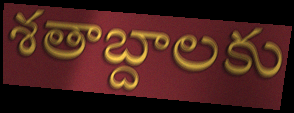
శతాబ్దాలకు